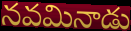
నవమినాడు